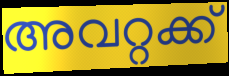
അവറ്റക്ക്